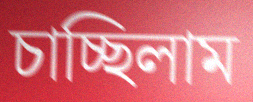
চাচ্ছিলাম